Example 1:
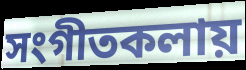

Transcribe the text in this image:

সংগীতকলায়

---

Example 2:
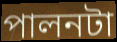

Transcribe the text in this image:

পালনটা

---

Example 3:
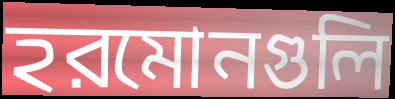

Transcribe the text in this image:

হরমোনগুলি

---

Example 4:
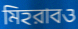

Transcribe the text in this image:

মিহরাবও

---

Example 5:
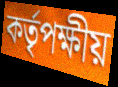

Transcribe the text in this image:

কর্তৃপক্ষীয়